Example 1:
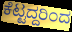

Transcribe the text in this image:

ಕೆಟ್ಟದ್ದರಿಂದ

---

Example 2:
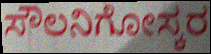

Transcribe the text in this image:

ಸೌಲನಿಗೋಸ್ಕರ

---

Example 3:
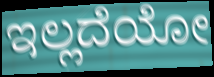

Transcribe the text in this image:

ಇಲ್ಲದೆಯೋ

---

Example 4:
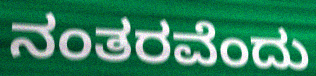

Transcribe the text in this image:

ನಂತರವೆಂದು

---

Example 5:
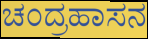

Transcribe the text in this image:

ಚಂದ್ರಹಾಸನ